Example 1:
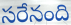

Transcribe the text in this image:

సరేనంది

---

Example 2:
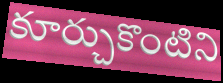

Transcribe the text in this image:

కూర్చుకొంటిని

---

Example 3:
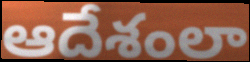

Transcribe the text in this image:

ఆదేశంలా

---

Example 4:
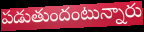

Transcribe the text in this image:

పడుతుందంటున్నారు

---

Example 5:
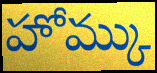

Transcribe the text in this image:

హోమ్కు